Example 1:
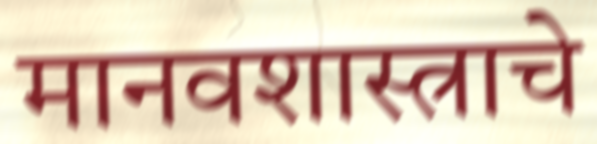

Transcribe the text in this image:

मानवशास्त्राचे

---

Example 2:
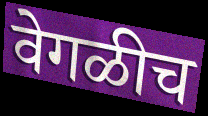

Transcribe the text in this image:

वेगळीच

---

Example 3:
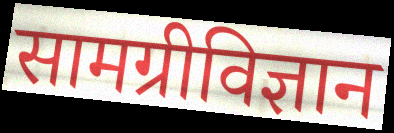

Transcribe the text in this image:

सामग्रीविज्ञान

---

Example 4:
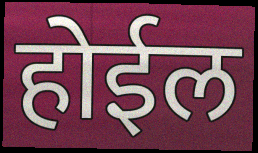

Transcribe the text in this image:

होईल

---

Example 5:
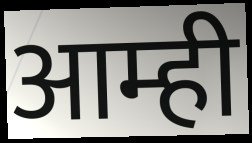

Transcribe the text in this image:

आम्ही